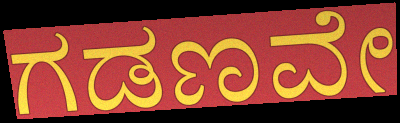
ಗಡಣವೇ